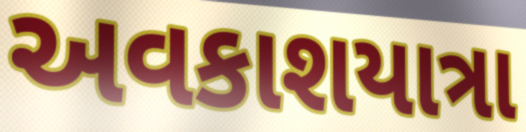
અવકાશયાત્રા